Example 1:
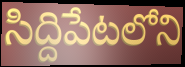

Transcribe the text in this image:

సిద్దిపేటలోని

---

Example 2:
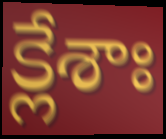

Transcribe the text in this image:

క్లేశాః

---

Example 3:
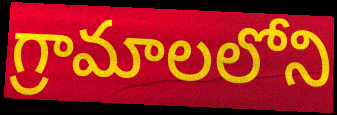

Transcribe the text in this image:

గ్రామాలలోని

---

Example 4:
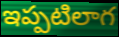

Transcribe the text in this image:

ఇప్పటిలాగ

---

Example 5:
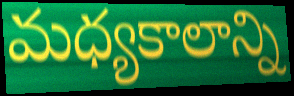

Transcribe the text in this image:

మధ్యకాలాన్ని